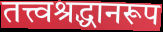
तत्त्वश्रद्धानरूप